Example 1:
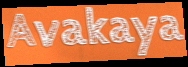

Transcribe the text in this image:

Avakaya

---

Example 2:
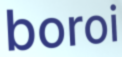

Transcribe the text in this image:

boroi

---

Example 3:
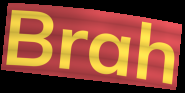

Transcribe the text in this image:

Brah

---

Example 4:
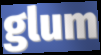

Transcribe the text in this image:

glum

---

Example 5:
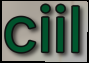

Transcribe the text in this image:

ciil